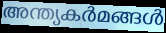
അന്ത്യകർമങ്ങൾ